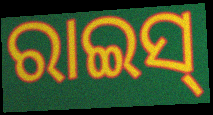
ରାଇସ୍